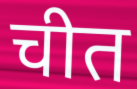
चीत